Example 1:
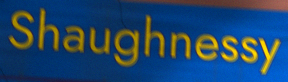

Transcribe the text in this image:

Shaughnessy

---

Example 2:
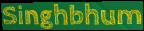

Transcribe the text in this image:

Singhbhum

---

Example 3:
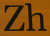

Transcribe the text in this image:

Zh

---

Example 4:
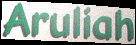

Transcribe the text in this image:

Aruliah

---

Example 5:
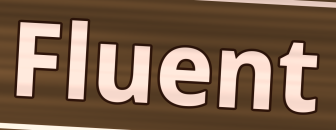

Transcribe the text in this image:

Fluent